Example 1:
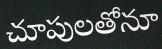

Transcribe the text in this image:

చూపులతోనూ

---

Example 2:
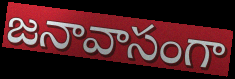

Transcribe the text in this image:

జనావాసంగా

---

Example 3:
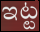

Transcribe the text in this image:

ఇట్ట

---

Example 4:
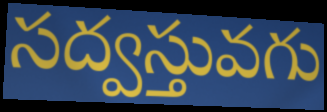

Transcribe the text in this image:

సద్వస్తువగు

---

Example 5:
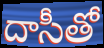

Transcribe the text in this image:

దాసీతో